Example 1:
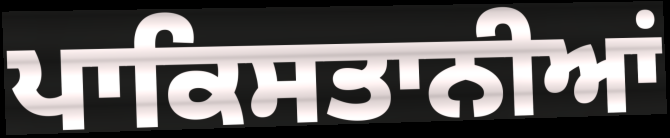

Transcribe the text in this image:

ਪਾਕਿਸਤਾਨੀਆਂ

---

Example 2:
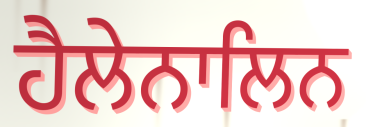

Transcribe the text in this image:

ਹੈਲੇਨਾਲਿਨ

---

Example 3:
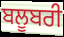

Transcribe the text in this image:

ਬਲੂਬਰੀ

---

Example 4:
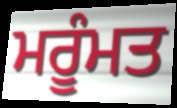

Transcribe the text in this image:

ਮਰੂੰਮਤ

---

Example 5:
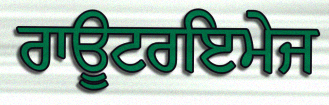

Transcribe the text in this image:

ਰਾਊਟਰਇਮੇਜ